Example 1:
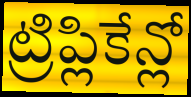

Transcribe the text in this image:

ట్రిప్లికేన్లో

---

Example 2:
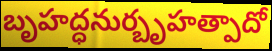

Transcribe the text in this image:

బృహద్ధనుర్బృహత్పాదో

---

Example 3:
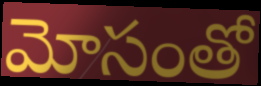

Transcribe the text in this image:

మోసంతో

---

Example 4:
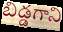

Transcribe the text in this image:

బిడ్డగాని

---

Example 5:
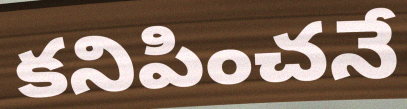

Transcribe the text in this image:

కనిపించనే